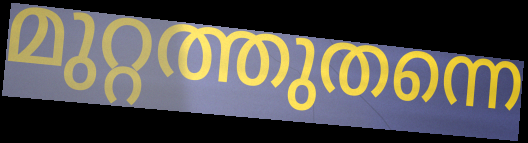
മുറ്റത്തുതന്നെ